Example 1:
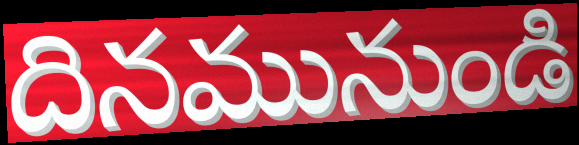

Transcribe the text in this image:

దినమునుండి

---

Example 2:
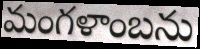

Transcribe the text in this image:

మంగళాంబను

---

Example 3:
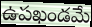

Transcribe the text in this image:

ఉపఖండమే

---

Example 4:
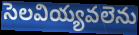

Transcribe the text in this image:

సెలవియ్యవలెను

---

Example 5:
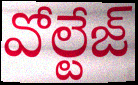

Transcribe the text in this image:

వోల్టేజ్